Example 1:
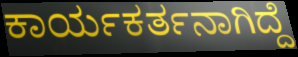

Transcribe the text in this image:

ಕಾರ್ಯಕರ್ತನಾಗಿದ್ದೆ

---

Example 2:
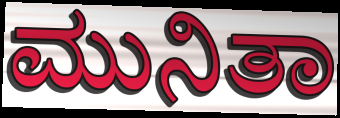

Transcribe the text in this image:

ಮುನಿತಾ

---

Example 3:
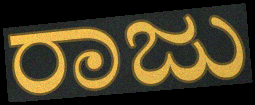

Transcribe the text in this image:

ರಾಜು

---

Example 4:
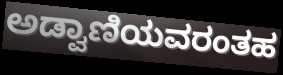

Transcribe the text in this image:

ಅಡ್ವಾಣಿಯವರಂತಹ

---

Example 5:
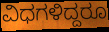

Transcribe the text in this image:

ವಿಧಗಳಿದ್ದರೂ